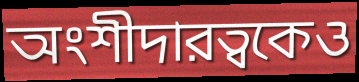
অংশীদারত্বকেও